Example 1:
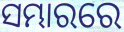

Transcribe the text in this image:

ସମ୍ଭାରରେ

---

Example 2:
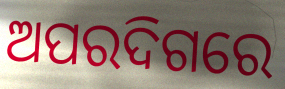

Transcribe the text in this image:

ଅପରଦିଗରେ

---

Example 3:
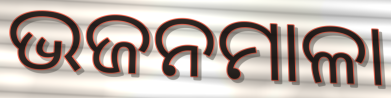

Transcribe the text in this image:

ଭଜନମାଳା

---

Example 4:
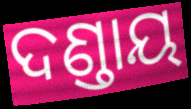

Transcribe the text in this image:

ଦଣ୍ଡାୟ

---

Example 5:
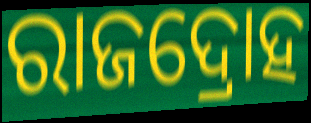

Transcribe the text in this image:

ରାଜଦ୍ରୋହ